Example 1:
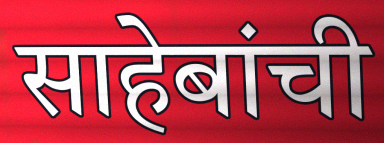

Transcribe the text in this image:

साहेबांची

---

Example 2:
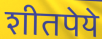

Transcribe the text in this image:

शीतपेये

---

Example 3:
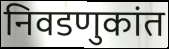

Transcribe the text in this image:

निवडणुकांत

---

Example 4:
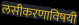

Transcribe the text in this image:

लसीकरणाविषयी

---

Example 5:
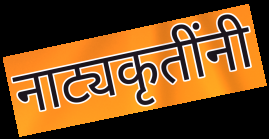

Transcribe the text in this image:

नाट्यकृतींनी